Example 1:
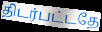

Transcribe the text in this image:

திடர்பட்டதே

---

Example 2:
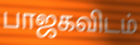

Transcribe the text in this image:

பாஜகவிடம்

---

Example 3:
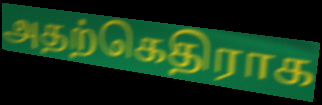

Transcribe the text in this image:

அதற்கெதிராக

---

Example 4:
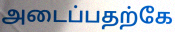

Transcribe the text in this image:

அடைப்பதற்கே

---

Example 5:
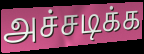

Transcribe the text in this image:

அச்சடிக்க